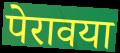
पेरावया